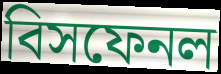
বিসফেনল